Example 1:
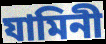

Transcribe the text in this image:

যামিনী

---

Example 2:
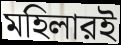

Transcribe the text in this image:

মহিলারই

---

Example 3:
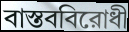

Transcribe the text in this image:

বাস্তববিরোধী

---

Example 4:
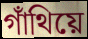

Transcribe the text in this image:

গাঁথিয়ে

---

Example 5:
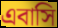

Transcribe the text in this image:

এবাসি